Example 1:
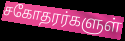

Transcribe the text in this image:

சகோதரர்களுள்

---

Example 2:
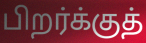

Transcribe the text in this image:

பிறர்க்குத்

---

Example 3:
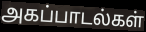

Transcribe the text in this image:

அகப்பாடல்கள்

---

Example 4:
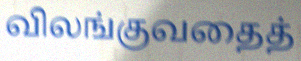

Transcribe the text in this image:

விலங்குவதைத்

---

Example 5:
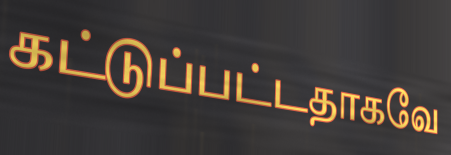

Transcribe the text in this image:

கட்டுப்பட்டதாகவே